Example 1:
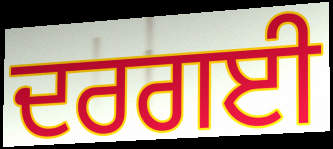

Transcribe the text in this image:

ਦਰਗਈ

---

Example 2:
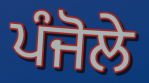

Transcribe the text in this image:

ਪੰਜੋਲੇ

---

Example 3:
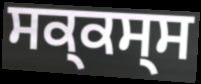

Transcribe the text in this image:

ਸਕ੍ਕਸ੍ਸ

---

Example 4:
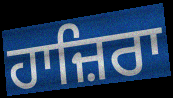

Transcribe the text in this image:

ਹਾਜ਼ਿਰਾ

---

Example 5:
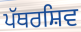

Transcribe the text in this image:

ਪੱਥਰਸ਼ਿਵ